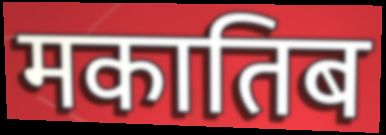
मकातिब